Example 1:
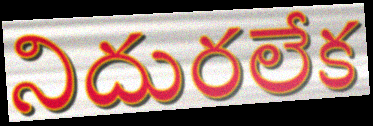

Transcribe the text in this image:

నిదురలేక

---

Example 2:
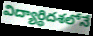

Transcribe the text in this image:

విద్యార్థిదశలోనే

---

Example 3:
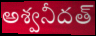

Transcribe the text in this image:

అశ్వనీదత్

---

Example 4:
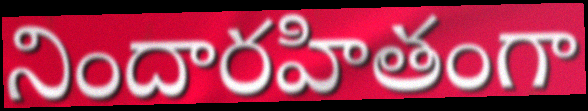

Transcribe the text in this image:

నిందారహితంగా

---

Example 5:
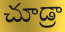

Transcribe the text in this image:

చూడ్రా